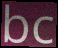
bc